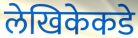
लेखिकेकडे